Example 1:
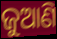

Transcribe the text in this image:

ଜୁଆଣି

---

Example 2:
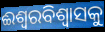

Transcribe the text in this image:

ଈଶ୍ୱରବିଶ୍ୱାସକୁ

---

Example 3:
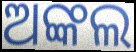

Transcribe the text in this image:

ଅଙ୍କଲ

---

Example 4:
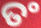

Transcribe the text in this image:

ତଂ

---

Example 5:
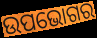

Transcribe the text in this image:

ଉପଭୋଗର